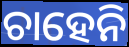
ଚାହେନି